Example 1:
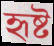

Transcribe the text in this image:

হৃষ্ট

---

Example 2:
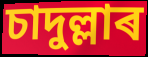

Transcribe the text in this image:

চাদুল্লাৰ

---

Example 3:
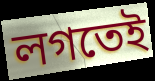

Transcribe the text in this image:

লগতেই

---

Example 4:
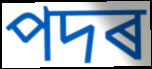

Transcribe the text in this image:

পদৰ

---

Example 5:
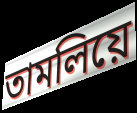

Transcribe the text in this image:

তামলিয়ে